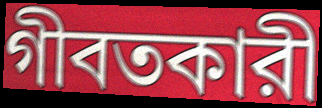
গীবতকারী